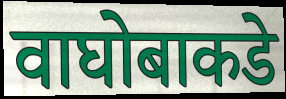
वाघोबाकडे